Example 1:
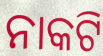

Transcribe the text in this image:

ନାକଟି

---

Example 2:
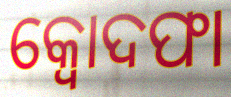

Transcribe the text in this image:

କ୍ବୋଦଫା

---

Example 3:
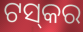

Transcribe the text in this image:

ଟସ୍‍କର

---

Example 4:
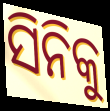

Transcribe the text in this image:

ସିନିକୁ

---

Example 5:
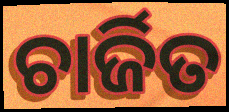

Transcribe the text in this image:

ଚାର୍ଜିତ